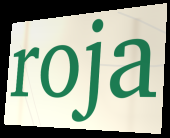
roja